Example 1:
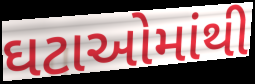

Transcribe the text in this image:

ઘટાઓમાંથી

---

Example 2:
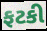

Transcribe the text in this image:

ફટકી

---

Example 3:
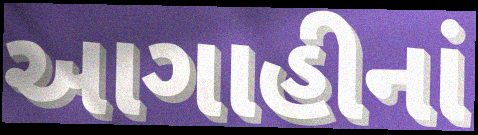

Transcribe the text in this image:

આગાહીનાં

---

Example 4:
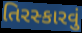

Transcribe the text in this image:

તિરસ્કારવું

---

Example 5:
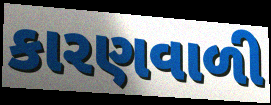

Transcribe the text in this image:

કારણવાળી